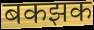
बकझक